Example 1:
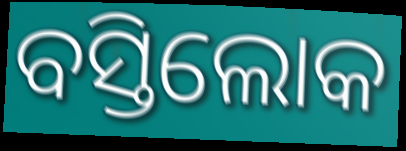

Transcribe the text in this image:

ବସ୍ତିଲୋକ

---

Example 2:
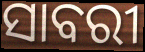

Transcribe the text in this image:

ସାବରୀ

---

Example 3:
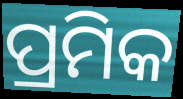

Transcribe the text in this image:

ପ୍ରମିକ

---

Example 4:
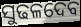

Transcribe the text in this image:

ସୁଢଳଦେବ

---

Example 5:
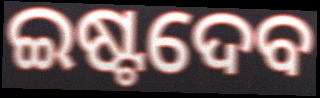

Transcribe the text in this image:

ଇଷ୍ଟଦେବ